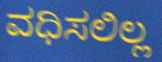
ವಧಿಸಲಿಲ್ಲ